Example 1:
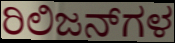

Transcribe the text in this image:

ರಿಲಿಜನ್‌ಗಳ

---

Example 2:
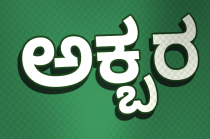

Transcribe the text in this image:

ಅಕ್ಬರ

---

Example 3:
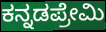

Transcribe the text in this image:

ಕನ್ನಡಪ್ರೇಮಿ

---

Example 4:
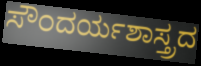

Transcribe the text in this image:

ಸೌಂದರ್ಯಶಾಸ್ತ್ರದ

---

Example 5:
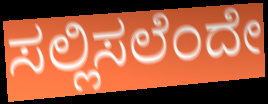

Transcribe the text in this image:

ಸಲ್ಲಿಸಲೆಂದೇ